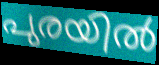
പുരയിൽ